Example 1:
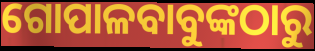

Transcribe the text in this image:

ଗୋପାଳବାବୁଙ୍କଠାରୁ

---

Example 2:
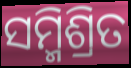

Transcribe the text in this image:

ସମ୍ମିଶ୍ରିତ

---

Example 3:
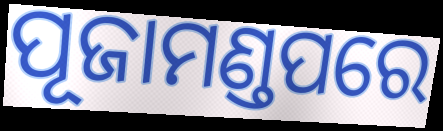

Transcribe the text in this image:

ପୂଜାମଣ୍ଡପରେ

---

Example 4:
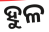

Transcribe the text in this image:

ହୁଳ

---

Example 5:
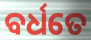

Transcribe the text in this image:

ବର୍ଧତେ